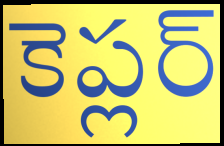
కెప్లర్